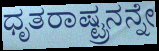
ಧೃತರಾಷ್ಟ್ರನನ್ನೇ